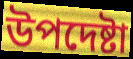
উপদেষ্টা